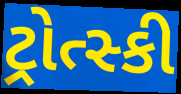
ટ્રોત્સ્કી